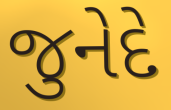
જુનેદે